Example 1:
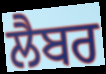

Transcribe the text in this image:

ਲੈਬਰ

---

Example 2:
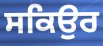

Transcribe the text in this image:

ਸਕਿਉਰ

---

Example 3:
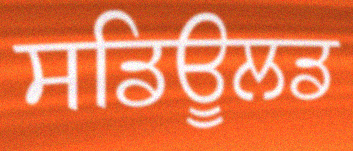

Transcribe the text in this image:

ਸਡਿਊਲਡ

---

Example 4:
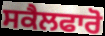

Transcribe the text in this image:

ਸਕੈਲਫਾਰੋ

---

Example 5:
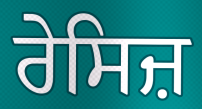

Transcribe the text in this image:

ਰੇਸਿਜ਼